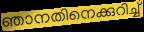
ഞാനതിനെക്കുറിച്ച്